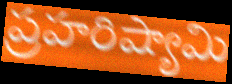
ప్రహరిష్యామి